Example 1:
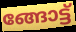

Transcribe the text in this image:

ങ്ങോട്ട്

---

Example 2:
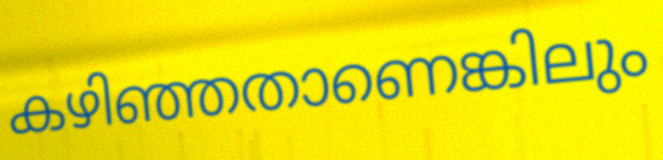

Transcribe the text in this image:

കഴിഞ്ഞതാണെങ്കിലും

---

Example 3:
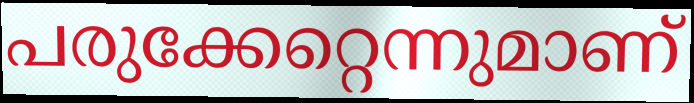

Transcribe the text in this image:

പരുക്കേറ്റെന്നുമാണ്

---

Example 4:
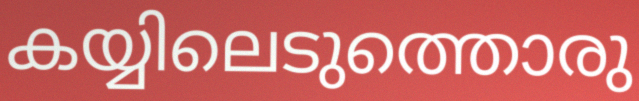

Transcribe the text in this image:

കയ്യിലെടുത്തൊരു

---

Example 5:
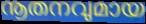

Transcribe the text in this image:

നൂതനവുമായ